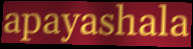
apayashala